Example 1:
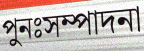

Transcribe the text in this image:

পুনঃসম্পাদনা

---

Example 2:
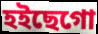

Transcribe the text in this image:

হইছেগো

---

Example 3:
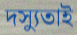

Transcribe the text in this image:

দস্যুতাই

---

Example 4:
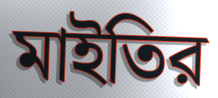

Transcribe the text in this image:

মাইতির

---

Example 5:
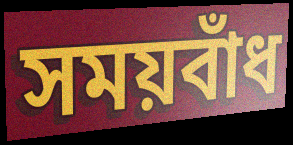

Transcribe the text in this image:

সময়বাঁধ